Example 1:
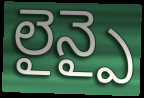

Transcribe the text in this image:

లైన్పై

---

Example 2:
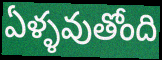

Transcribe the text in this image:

ఏళ్ళవుతోంది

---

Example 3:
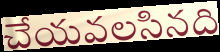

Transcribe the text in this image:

చేయవలసినది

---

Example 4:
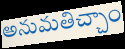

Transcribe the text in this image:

అనుమతిచ్చాం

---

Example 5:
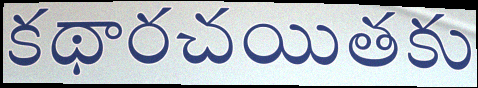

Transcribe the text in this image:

కథారచయితకు